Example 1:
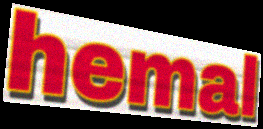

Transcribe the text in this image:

hemal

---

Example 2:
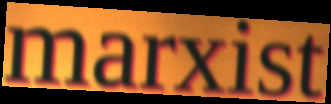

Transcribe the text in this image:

marxist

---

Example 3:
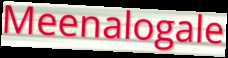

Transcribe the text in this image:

Meenalogale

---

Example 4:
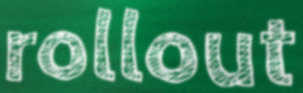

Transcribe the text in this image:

rollout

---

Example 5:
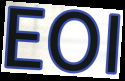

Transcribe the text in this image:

EOI